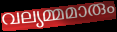
വല്യമ്മമാരും